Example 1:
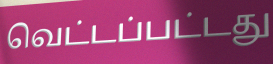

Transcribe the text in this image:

வெட்டப்பட்டது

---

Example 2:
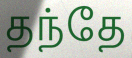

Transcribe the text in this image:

தந்தே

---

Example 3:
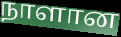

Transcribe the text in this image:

நாளான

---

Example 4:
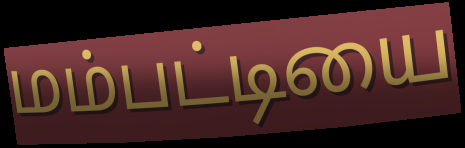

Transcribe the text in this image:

மம்பட்டியை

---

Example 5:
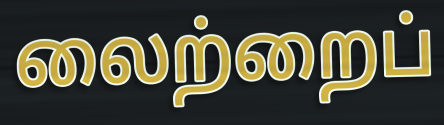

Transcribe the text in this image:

லைற்றைப்